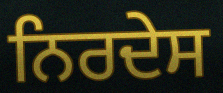
ਨਿਰਦੇਸ